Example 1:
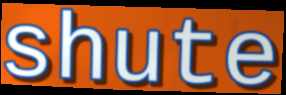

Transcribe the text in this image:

shute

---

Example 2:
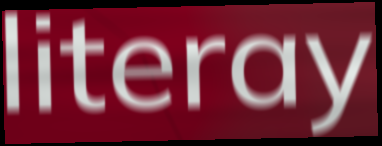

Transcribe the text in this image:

literay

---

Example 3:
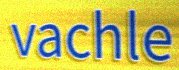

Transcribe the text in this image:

vachle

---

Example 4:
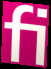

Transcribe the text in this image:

fi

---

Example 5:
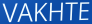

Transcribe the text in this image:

VAKHTE